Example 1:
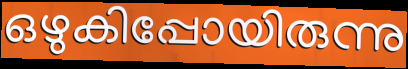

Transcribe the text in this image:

ഒഴുകിപ്പോയിരുന്നു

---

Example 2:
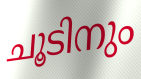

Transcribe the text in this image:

ചൂടിനും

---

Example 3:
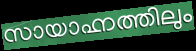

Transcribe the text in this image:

സായാഹ്നത്തിലും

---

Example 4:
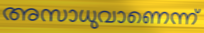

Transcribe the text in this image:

അസാധുവാണെന്ന്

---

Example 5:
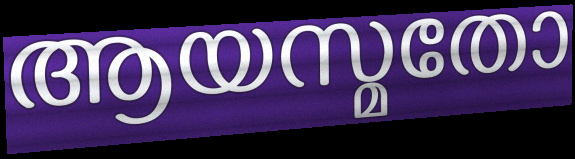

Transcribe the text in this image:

ആയസ്മതോ